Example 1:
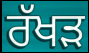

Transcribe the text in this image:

ਰੱਖੜ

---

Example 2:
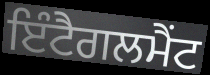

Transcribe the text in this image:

ਇੰਟੈਗਲਮੈਂਟ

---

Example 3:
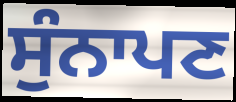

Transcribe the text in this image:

ਸੁੰਨਾਪਣ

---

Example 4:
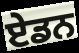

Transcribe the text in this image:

ਏਡਨ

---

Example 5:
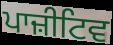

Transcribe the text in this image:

ਪਾਜ਼ੀਟਿਵ